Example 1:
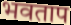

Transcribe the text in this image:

भवताप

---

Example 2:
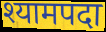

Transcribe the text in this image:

श्यामपदा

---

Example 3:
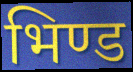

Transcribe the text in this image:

भिण्ड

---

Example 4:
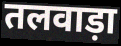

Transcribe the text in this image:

तलवाड़ा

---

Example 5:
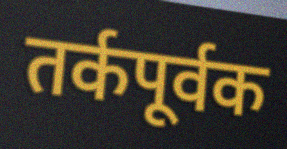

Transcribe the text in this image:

तर्कपूर्वक